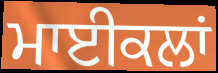
ਮਾਈਕਲਾਂ